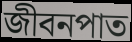
জীবনপাত